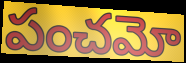
పంచమో